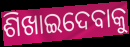
ଶିଖାଇଦେବାକୁ